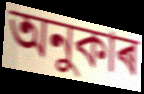
অনুকাৰ